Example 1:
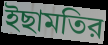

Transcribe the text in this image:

ইছামতির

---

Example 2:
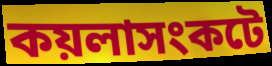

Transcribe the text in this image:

কয়লাসংকটে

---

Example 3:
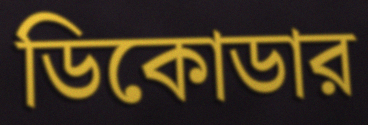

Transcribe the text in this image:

ডিকোডার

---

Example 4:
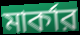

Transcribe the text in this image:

মার্কার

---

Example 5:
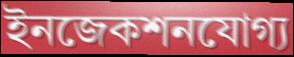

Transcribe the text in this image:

ইনজেকশনযোগ্য